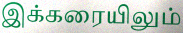
இக்கரையிலும்